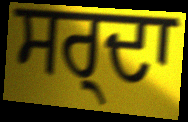
ਸਰ੍ਦਾ